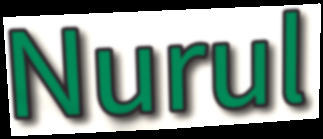
Nurul